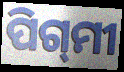
ପିଗ୍‌ମୀ